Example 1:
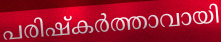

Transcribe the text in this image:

പരിഷ്കർത്താവായി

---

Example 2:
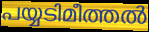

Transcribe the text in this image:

പയ്യടിമീത്തൽ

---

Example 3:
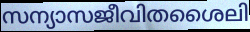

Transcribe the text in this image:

സന്യാസജീവിതശൈലി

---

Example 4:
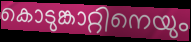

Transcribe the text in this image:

കൊടുങ്കാറ്റിനെയും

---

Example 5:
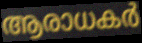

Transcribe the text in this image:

ആരാധകർ